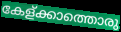
കേള്ക്കാത്തൊരു